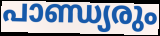
പാണ്ഡ്യരും